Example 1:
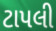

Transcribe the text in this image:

ટાપલી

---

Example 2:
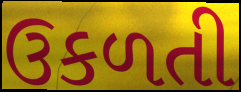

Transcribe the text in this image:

ઉકળતી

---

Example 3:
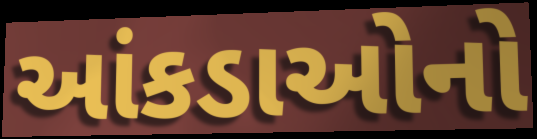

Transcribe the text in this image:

આંકડાઓનો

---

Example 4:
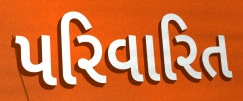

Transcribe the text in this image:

પરિવારિત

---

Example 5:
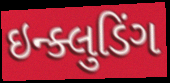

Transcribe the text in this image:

ઇન્ક્લુડિંગ